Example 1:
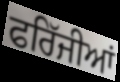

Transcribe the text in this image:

ਫਰਿੱਜੀਆਂ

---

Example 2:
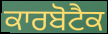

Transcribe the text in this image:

ਕਾਰਬੋਟੈਕ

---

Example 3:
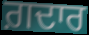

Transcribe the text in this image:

ਗ਼ਦਾਰ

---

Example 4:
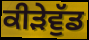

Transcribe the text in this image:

ਕੀੜੇਵੁੱਡ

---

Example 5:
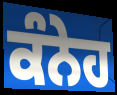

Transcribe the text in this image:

ਕੰਨੇਹ